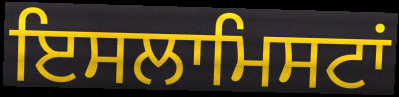
ਇਸਲਾਮਿਸਟਾਂ